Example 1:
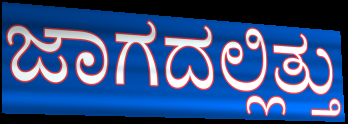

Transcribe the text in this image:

ಜಾಗದಲ್ಲಿತ್ತು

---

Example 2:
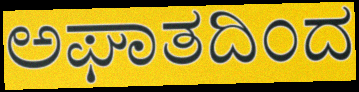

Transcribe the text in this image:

ಅಘಾತದಿಂದ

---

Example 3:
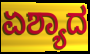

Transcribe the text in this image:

ಏಶ್ಯಾದ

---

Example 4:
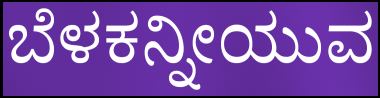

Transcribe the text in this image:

ಬೆಳಕನ್ನೀಯುವ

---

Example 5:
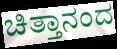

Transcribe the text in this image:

ಚಿತ್ತಾನಂದ